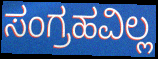
ಸಂಗ್ರಹವಿಲ್ಲ